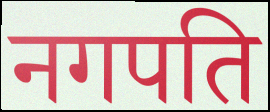
नगपति